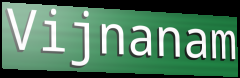
Vijnanam